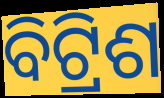
ବିଟ୍ରିଶ